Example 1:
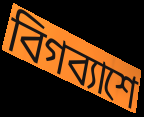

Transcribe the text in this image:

বিগব্যাশে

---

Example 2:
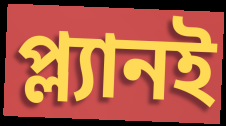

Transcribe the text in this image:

প্ল্যানই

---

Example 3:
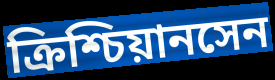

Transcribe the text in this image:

ক্রিশ্চিয়ানসেন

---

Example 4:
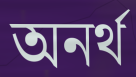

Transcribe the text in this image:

অনর্থ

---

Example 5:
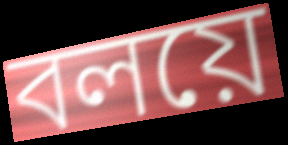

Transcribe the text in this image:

বলয়ে